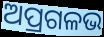
ଅପ୍ରଗଳଭ